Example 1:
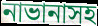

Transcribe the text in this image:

নাভানাসহ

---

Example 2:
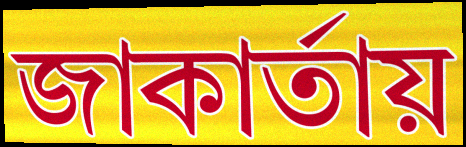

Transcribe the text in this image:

জাকার্তায়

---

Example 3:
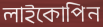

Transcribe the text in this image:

লাইকোপিন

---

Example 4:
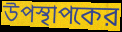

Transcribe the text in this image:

উপস্থাপকের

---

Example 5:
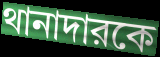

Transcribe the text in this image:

থানাদারকে